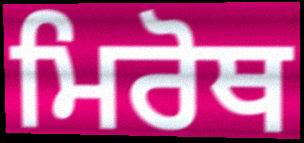
ਮਿਰੋਥ